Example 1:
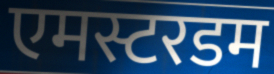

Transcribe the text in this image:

एमस्टरडम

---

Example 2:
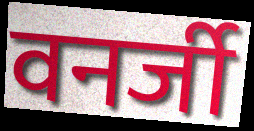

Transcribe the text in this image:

वनर्जी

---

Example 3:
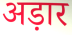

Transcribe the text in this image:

अड़ार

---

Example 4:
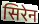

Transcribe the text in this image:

सिरेन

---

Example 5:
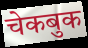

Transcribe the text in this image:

चेकबुक